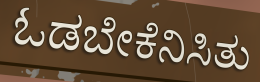
ಓಡಬೇಕೆನಿಸಿತು